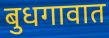
बुधगावात